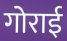
गोराई